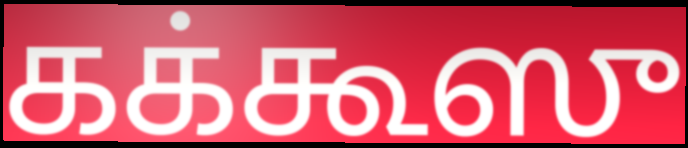
கக்கூஸு